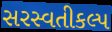
સરસ્વતીકલ્પ